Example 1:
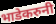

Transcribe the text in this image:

भाडेकरुनी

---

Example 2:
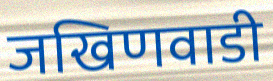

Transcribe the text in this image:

जखिणवाडी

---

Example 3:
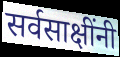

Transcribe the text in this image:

सर्वसाक्षींनी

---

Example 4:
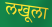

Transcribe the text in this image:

लखूला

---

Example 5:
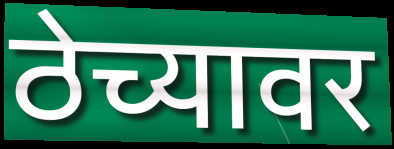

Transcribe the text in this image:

ठेच्यावर